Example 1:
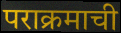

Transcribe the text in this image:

पराक्रमाची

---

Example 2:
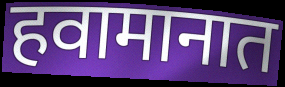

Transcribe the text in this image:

हवामानात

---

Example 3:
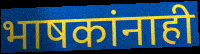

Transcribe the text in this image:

भाषकांनाही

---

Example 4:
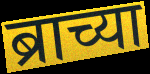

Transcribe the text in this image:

ब्राच्या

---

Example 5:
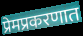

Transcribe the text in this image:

प्रेमप्रकरणात